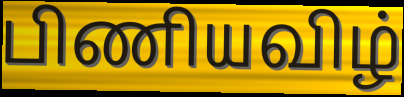
பிணியவிழ்